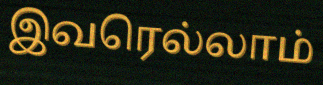
இவரெல்லாம்